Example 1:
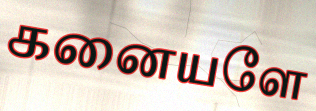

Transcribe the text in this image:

கனையளே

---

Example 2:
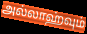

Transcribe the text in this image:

அல்லாஹ்வும்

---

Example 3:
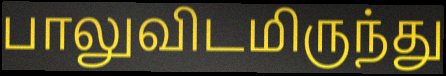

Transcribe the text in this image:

பாலுவிடமிருந்து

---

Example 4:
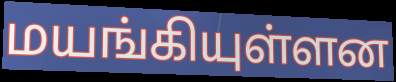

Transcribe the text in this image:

மயங்கியுள்ளன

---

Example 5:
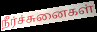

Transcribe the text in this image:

நீர்ச்சுனைகள்